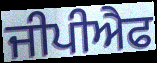
ਜੀਪੀਐਫ